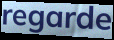
regarde